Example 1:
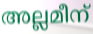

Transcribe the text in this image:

അല്ലമീന്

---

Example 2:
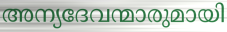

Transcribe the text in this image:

അന്യദേവന്മാരുമായി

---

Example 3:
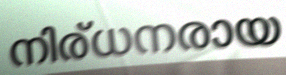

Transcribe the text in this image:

നിര്ധനരായ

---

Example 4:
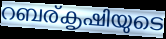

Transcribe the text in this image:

റബര്കൃഷിയുടെ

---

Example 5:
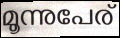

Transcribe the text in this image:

മൂന്നുപേര്